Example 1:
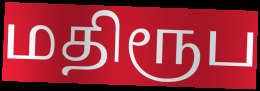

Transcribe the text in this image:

மதிரூப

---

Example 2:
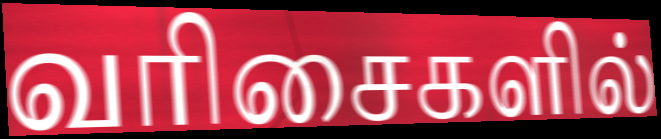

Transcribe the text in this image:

வரிசைகளில்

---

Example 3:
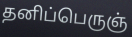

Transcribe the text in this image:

தனிப்பெருஞ்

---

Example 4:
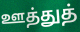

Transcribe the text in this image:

ஊத்துத்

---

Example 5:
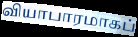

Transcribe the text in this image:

வியாபாரமாகப்